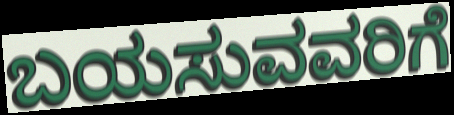
ಬಯಸುವವರಿಗೆ